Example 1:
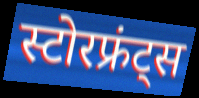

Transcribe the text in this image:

स्टोरफ्रंट्स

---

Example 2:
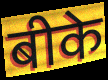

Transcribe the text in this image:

बीके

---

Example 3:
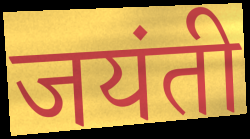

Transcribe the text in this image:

जयंती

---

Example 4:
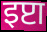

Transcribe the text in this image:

इप्टा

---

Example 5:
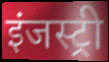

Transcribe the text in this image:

इंजस्ट्री